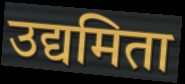
उद्यमिता